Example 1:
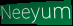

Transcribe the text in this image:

Neeyum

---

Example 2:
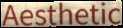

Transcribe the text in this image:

Aesthetic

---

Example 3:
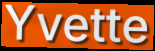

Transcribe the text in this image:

Yvette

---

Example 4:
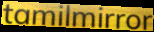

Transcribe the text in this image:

tamilmirror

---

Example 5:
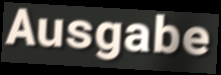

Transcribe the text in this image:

Ausgabe